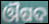
ଔଷଦ